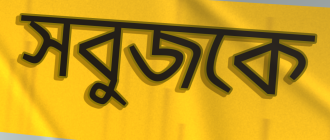
সবুজকে